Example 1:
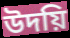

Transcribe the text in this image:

উদয়ি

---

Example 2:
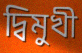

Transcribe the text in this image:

দ্বিমুখী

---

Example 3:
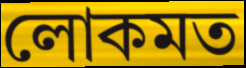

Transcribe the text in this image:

লোকমত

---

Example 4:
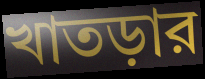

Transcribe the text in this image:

খাতড়ার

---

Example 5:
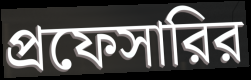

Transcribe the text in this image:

প্রফেসারির